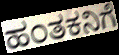
ಹಂತಕನಿಗೆ